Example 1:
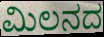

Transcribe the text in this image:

ಮಿಲನದ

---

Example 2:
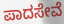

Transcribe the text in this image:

ಪಾದಸೇವೆ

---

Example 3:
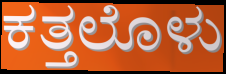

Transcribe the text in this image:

ಕತ್ತಲೊಳು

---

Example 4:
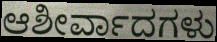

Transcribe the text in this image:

ಆಶೀರ್ವಾದಗಳು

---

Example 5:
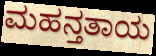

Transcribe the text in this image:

ಮಹನ್ತತಾಯ